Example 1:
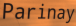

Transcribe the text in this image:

Parinay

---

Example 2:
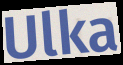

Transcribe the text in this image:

Ulka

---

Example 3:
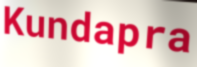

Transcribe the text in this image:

Kundapra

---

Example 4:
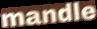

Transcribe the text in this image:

mandle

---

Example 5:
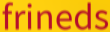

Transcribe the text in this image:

frineds